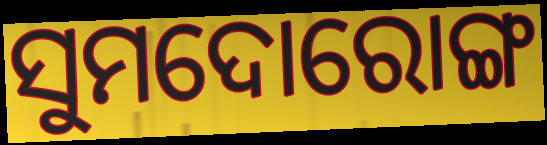
ସୁମଦୋରୋଙ୍ଗ